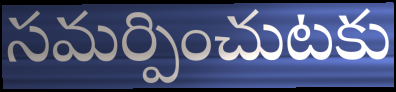
సమర్పించుటకు